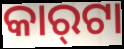
କାର୍‍ଟା